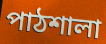
পাঠশালা